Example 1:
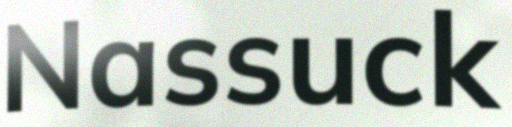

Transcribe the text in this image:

Nassuck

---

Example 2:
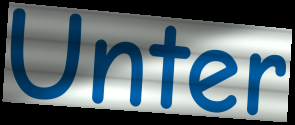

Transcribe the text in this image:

Unter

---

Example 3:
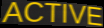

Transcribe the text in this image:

ACTIVE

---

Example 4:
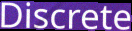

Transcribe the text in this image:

Discrete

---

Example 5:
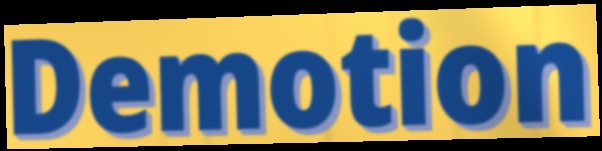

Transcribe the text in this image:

Demotion